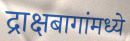
द्राक्षबागांमध्ये